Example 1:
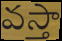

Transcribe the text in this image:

వస్తా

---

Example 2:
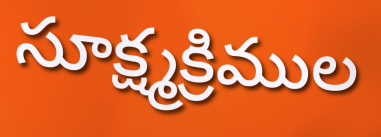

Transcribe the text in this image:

సూక్ష్మక్రిముల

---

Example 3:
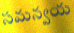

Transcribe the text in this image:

సమన్వయ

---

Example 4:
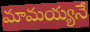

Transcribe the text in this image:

మామయ్యనే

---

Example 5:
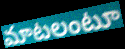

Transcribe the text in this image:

మాటలంటూ